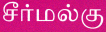
சீர்மல்கு